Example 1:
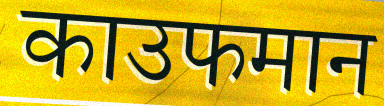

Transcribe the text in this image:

काउफमान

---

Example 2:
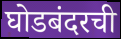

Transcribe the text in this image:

घोडबंदरची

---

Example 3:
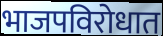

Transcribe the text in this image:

भाजपविरोधात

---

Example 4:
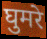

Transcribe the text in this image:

घुमरे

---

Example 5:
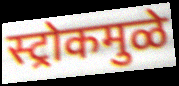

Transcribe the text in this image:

स्ट्रोकमुळे